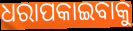
ଧରାପକାଇବାକୁ